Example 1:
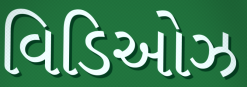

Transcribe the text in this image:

વિડિઓઝ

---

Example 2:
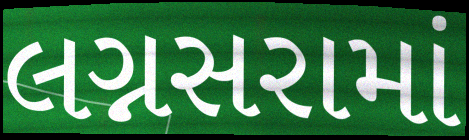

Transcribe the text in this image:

લગ્નસરામાં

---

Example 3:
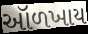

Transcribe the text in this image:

ઑળખાય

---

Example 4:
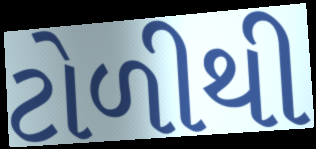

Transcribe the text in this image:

ટોળીથી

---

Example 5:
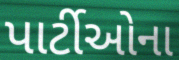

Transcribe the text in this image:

પાર્ટીઓના